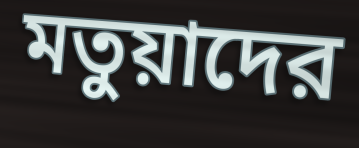
মতুয়াদের